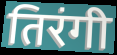
तिरंगी